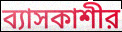
ব্যাসকাশীর